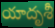
యాదృశీ